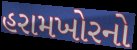
હરામખોરનો